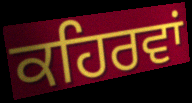
ਕਹਿਰਵਾਂ